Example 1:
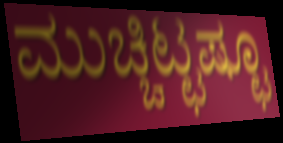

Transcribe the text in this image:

ಮುಚ್ಚಿಟ್ಟಷ್ಟೂ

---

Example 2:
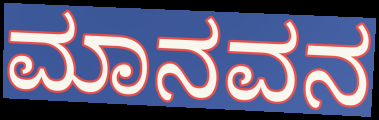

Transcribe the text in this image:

ಮಾನವನ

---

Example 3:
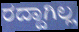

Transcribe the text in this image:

ರದ್ದಾಗಿಲ್ಲ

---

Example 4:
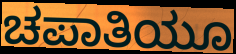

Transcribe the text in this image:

ಚಪಾತಿಯೂ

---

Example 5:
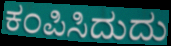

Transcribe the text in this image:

ಕಂಪಿಸಿದುದು